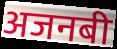
अजनबी